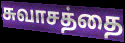
சுவாசத்தை